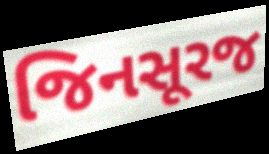
જિનસૂરજ